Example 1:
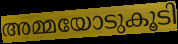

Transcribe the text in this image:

അമ്മയോടുകൂടി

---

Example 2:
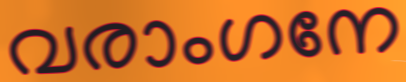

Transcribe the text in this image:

വരാംഗനേ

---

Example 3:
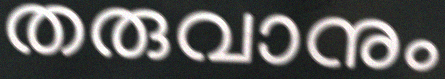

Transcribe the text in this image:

തരുവാനും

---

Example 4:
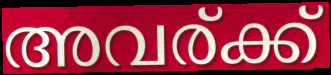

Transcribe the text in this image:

അവര്ക്ക്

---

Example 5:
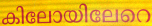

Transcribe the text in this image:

കിലോയിലേറെ